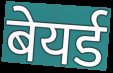
बेयर्ड